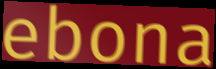
ebona